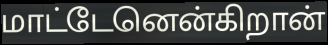
மாட்டேனென்கிறான்